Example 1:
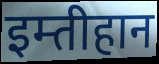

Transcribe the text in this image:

इम्तीहान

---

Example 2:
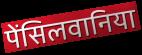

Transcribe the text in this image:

पेंसिलवानिया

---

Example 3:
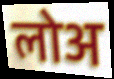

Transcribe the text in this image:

लोअ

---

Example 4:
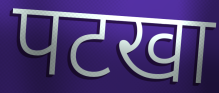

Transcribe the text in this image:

पटखा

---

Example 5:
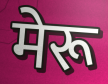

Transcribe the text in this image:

मेरू